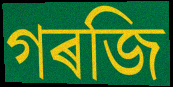
গৰজি